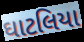
ઘાટલિયા